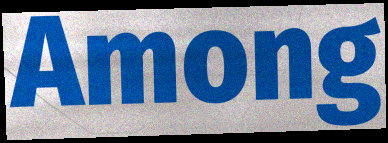
Among